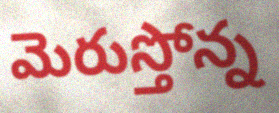
మెరుస్తోన్న